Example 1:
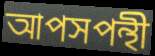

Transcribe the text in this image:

আপসপন্থী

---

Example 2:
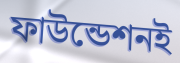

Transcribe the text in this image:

ফাউন্ডেশনই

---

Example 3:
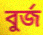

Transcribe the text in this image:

বুর্জ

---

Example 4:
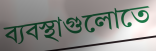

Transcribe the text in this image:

ব্যবস্থাগুলোতে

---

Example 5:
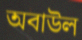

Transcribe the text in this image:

অবাউল